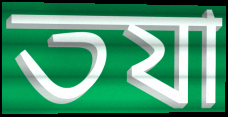
তযা